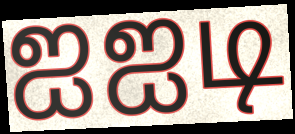
ஐஐடி